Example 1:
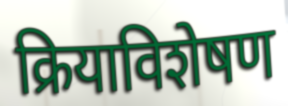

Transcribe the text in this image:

क्रियाविशेषण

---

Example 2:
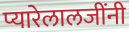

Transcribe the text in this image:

प्यारेलालजींनी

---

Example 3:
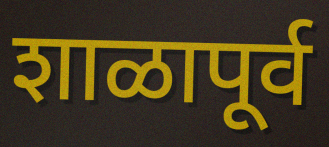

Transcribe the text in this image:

शाळापूर्व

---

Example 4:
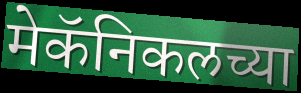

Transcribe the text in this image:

मेकॅनिकलच्या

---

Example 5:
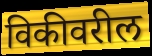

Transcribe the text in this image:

विकीवरील